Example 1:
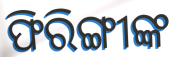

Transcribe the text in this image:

ଫିରିଙ୍ଗୀଙ୍କ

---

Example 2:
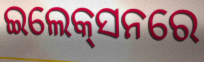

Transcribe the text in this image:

ଇଲେକ୍‍ସନରେ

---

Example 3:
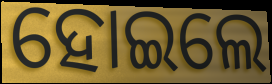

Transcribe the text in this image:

ହୋଇଲେ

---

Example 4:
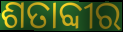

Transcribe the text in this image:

ଶତାବ୍ଦୀର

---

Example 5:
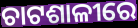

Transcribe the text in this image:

ଚାଟଶାଳୀରେ